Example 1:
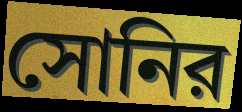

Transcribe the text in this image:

সোনির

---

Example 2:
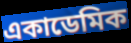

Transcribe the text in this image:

একাডেমিক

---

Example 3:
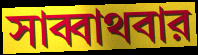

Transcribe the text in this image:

সাব্বাথবার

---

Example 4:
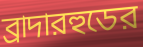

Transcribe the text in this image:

ব্রাদারহুডের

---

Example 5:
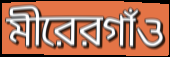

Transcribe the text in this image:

মীরেরগাঁও